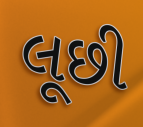
લૂછી